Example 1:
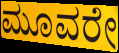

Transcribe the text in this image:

ಮೂವರೇ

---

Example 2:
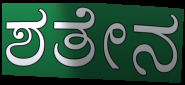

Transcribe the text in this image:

ಶತೇನ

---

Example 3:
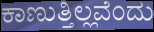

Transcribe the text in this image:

ಕಾಣುತ್ತಿಲ್ಲವೆಂದು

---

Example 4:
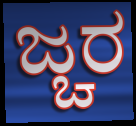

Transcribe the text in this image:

ಜ್ಚರ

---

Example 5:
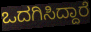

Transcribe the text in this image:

ಒದಗಿಸಿದ್ದಾರೆ